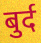
बुर्द